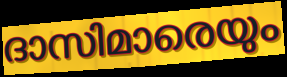
ദാസിമാരെയും